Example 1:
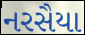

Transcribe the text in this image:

નરસૈયા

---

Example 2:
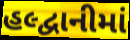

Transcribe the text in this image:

હલ્દ્વાનીમાં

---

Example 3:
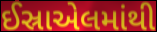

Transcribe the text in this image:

ઈસ્રાએલમાંથી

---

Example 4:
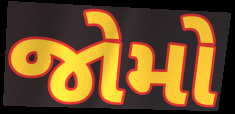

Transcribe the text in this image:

જોમો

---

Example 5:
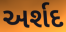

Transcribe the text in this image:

અર્શદ